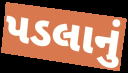
પડલાનું